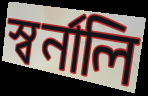
স্বর্নালি